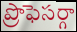
ప్రొఫెసర్గా